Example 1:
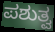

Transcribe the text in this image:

ಪಶುತ್ವ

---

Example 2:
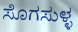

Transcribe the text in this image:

ಸೊಗಸುಳ್ಳ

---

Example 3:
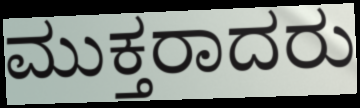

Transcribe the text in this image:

ಮುಕ್ತರಾದರು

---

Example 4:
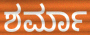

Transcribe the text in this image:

ಶರ್ಮಾ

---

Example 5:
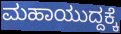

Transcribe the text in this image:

ಮಹಾಯುದ್ದಕ್ಕೆ